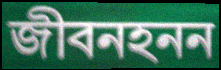
জীবনহনন